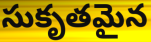
సుకృతమైన